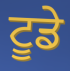
ਟੂਡੇ